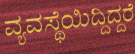
ವ್ಯವಸ್ಥೆಯಿದ್ದಿದ್ದರೆ